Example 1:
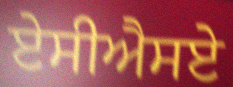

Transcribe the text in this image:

ਏਸੀਐਸਏ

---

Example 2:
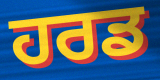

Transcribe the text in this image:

ਹਰਡ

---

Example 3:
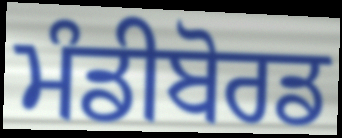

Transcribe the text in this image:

ਮੰਡੀਬੋਰਡ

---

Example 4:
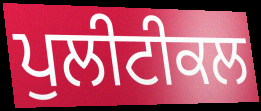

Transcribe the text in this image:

ਪੁਲੀਟੀਕਲ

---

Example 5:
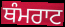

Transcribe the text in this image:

ਥੰਮਰਾਟ